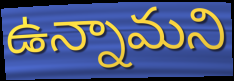
ఉన్నామని